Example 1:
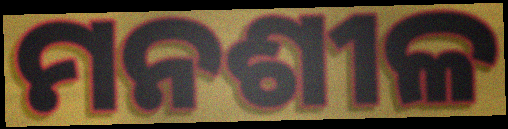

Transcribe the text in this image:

ମନଶୀଳ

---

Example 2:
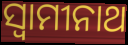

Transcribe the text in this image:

ସ୍ୱାମୀନାଥ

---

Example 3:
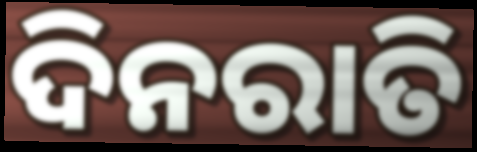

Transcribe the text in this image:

ଦିନରାତି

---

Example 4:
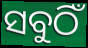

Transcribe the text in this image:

ସବୁଠିଁ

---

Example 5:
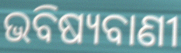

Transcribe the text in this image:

ଭବିଷ୍ୟବାଣୀ